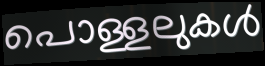
പൊള്ളലുകൾ